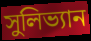
সুলিভ্যান